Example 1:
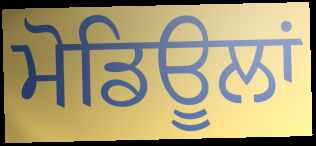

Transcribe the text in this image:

ਮੋਡਿਊਲਾਂ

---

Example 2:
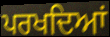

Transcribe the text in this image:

ਪਰਖਦਿਆਂ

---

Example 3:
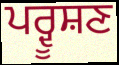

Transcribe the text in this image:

ਪਰ੍ਦੂਸ਼ਣ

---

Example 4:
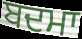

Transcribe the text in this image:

ਬਦਮਾ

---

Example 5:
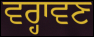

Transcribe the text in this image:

ਵਰ੍ਹਾਵਣ